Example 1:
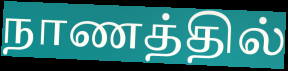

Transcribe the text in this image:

நாணத்தில்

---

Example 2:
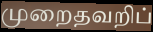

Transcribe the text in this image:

முறைதவறிப்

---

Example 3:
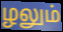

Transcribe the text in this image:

ழலும்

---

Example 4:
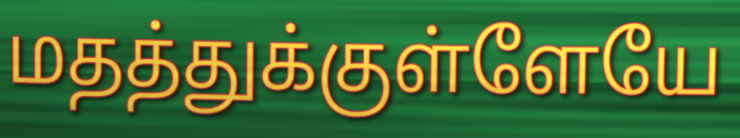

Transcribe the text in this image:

மதத்துக்குள்ளேயே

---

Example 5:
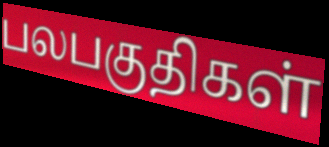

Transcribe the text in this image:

பலபகுதிகள்